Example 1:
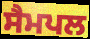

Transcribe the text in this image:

ਸੈਮਪਲ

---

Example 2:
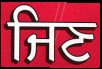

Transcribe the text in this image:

ਜਿਣ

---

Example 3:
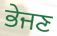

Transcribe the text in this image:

ਭੇਜਣ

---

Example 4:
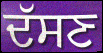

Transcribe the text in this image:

ਦੱਸਣ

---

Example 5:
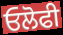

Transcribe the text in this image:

ਓਲੋਫੀ